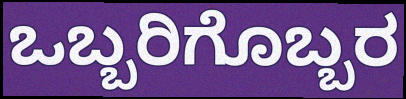
ಒಬ್ಬರಿಗೊಬ್ಬರ